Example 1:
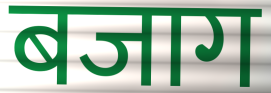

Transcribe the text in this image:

बजाग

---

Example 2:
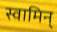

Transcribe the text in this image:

स्वामिन्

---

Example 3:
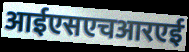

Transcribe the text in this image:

आईएसएचआरएई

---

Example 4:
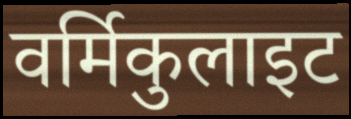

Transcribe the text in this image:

वर्मिकुलाइट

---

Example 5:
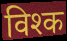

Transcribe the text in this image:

विश्क